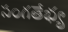
సంగతేభ్య